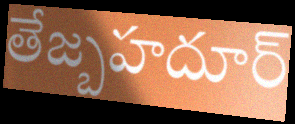
తేజ్బహదూర్